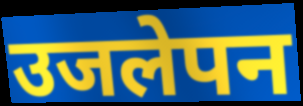
उजलेपन